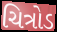
ચિત્રોડ